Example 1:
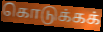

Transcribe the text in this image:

கொடுக்கக்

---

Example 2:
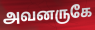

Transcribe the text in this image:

அவனருகே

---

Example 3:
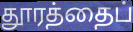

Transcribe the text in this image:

தூரத்தைப்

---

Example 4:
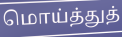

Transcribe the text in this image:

மொய்த்துத்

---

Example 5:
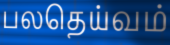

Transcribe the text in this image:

பலதெய்வம்